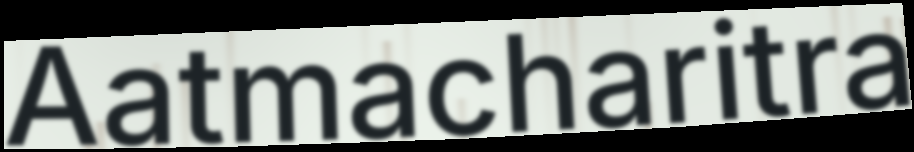
Aatmacharitra